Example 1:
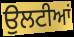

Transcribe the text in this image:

ਉਲਟੀਆਂ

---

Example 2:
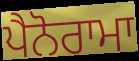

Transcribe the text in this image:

ਪੈਨੋਰਾਮਾ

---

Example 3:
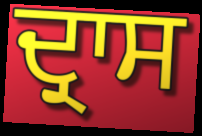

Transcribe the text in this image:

ਦ੍ਰਾਸ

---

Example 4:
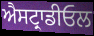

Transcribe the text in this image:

ਐਸਟ੍ਰਾਡੀਓਲ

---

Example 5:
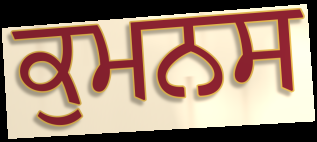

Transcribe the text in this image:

ਕੁਮਨਸ